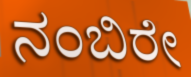
ನಂಬಿರೇ